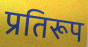
प्रतिरूप